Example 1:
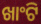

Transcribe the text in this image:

ଖାଂଟି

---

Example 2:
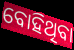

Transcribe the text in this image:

ବୋହିଥିବା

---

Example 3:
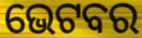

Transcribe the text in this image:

ଭେଟବର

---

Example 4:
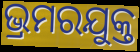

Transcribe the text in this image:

ଭ୍ରମରଯୁକ୍ତ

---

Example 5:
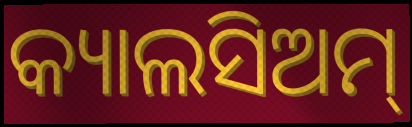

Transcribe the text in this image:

କ୍ୟାଲସିଅମ୍